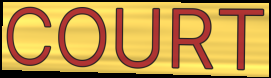
COURT